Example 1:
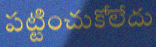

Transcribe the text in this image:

పట్టించుకోలేదు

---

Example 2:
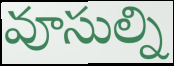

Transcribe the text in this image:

వూసుల్ని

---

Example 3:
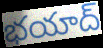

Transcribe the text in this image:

భయాద్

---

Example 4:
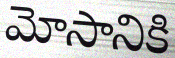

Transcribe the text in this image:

మోసానికి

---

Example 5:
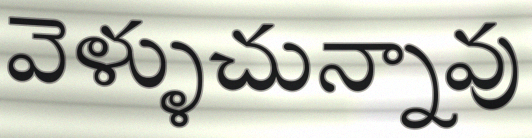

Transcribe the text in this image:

వెళ్ళుచున్నావు